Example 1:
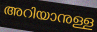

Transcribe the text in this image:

അറിയാനുള്ള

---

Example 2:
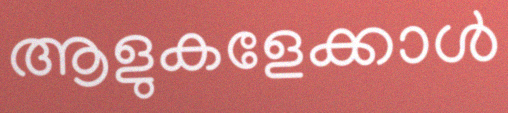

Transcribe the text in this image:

ആളുകളേക്കാൾ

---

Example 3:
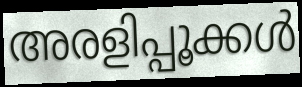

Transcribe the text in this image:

അരളിപ്പൂക്കൾ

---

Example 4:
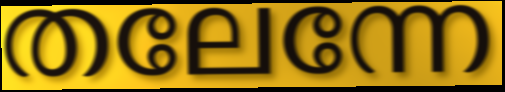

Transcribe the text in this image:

തലേന്നേ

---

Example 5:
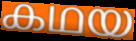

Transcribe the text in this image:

കഥയ